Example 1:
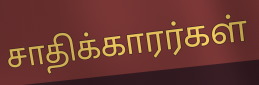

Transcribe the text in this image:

சாதிக்காரர்கள்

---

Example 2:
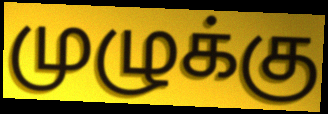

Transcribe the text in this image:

முழுக்கு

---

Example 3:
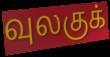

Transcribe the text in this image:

வுலகுக்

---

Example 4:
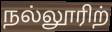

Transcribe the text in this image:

நல்லூரிற்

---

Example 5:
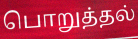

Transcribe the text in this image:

பொறுத்தல்